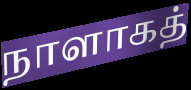
நாளாகத்